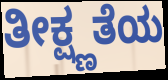
ತೀಕ್ಷ್ಣತೆಯ